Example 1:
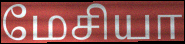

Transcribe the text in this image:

மேசியா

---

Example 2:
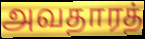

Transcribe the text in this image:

அவதாரத்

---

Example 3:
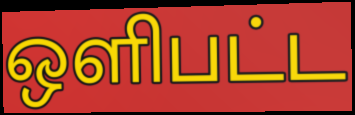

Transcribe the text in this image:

ஒளிபட்ட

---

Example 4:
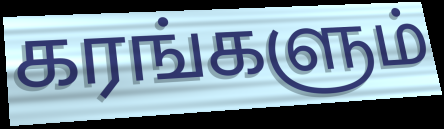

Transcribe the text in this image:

கரங்களும்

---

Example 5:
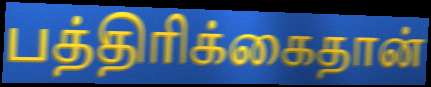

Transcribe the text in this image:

பத்திரிக்கைதான்